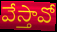
వేస్తావో